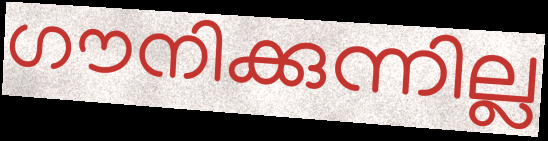
ഗൗനിക്കുന്നില്ല